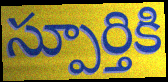
స్పూర్తికి